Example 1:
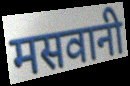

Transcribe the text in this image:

मसवानी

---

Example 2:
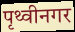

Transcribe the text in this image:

पृथ्वीनगर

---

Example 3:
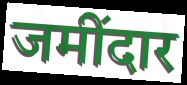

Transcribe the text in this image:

जमींदार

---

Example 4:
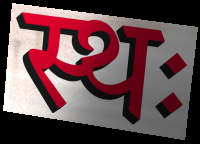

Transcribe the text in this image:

स्थः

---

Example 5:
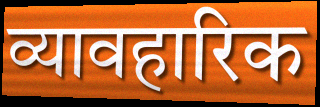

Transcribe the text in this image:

व्‍यावहारिक